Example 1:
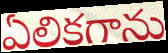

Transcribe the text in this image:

ఏలికగాను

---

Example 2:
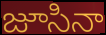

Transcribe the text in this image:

జూసినా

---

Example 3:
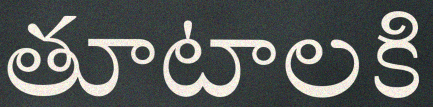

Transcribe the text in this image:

తూటాలకి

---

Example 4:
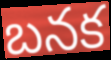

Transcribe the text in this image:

బనక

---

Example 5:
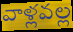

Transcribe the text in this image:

వాళ్లవల్ల